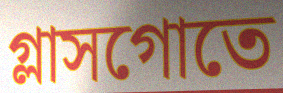
গ্লাসগোতে